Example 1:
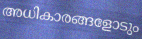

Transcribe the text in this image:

അധികാരങ്ങളോടും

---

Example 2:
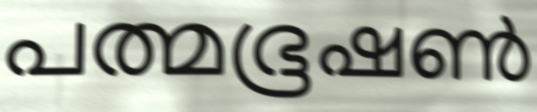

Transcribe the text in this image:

പത്മഭൂഷൺ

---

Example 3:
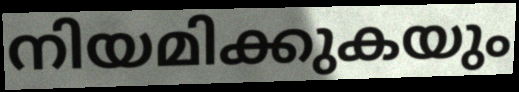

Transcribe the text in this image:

നിയമിക്കുകയും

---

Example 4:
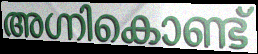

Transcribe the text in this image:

അഗ്നികൊണ്ട്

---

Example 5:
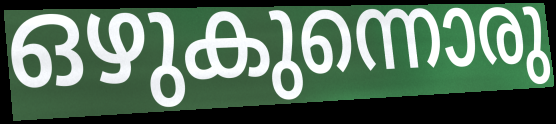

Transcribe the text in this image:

ഒഴുകുന്നൊരു